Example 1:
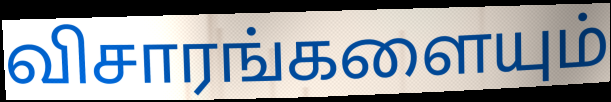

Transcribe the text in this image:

விசாரங்களையும்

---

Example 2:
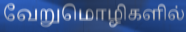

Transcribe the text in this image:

வேறுமொழிகளில்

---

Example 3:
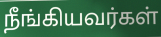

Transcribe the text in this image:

நீங்கியவர்கள்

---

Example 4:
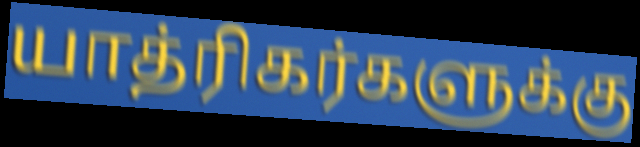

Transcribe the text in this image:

யாத்ரிகர்களுக்கு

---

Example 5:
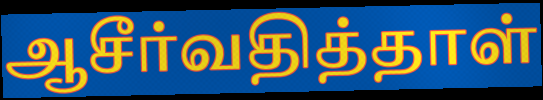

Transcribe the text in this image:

ஆசீர்வதித்தாள்